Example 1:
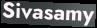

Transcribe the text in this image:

Sivasamy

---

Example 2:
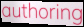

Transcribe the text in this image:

authoring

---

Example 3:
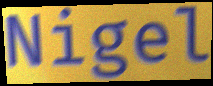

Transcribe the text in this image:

Nigel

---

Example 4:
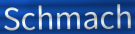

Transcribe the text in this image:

Schmach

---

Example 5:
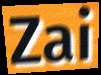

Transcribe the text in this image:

Zai